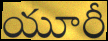
యూరీ